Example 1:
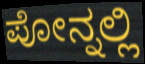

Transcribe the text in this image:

ಪೋನ್ನಲ್ಲಿ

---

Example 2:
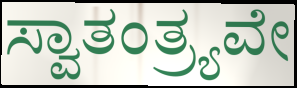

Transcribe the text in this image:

ಸ್ವಾತಂತ್ರ್ಯವೇ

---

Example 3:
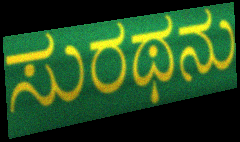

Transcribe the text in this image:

ಸುರಥನು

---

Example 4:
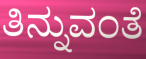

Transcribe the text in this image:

ತಿನ್ನುವಂತೆ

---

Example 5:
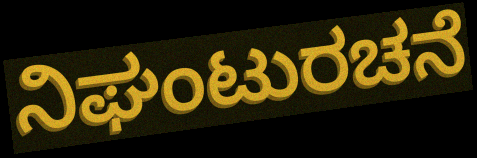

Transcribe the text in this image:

ನಿಘಂಟುರಚನೆ